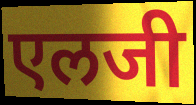
एलजी